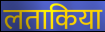
लताकिया